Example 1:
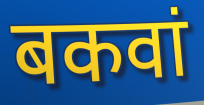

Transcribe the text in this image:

बकवां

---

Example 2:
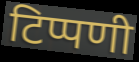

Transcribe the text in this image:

टिप्‍पणी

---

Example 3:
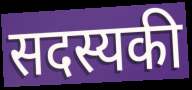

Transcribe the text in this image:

सदस्यकी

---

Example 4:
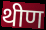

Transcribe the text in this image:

थीण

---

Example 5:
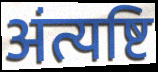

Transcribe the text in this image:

अंत्यष्टि